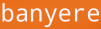
banyere